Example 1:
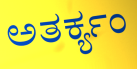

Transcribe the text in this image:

ಅತರ್ಕ್ಯಂ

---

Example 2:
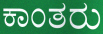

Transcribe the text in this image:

ಕಾಂತರು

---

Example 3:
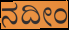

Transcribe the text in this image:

ನದೀಂ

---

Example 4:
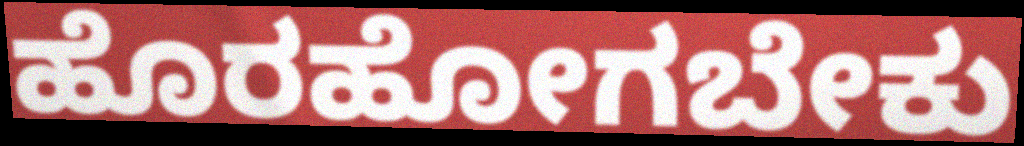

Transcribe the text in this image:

ಹೊರಹೋಗಬೇಕು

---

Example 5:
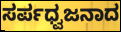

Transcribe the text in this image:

ಸರ್ಪಧ್ವಜನಾದ